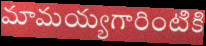
మామయ్యగారింటికి